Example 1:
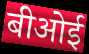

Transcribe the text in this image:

बीओई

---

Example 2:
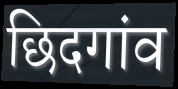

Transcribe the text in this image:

छिदगांव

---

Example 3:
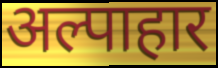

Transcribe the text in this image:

अल्पाहार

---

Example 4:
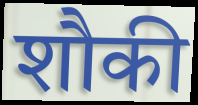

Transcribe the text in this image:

शौकी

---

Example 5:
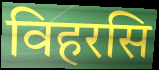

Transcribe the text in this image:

विहरसि